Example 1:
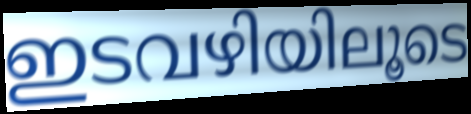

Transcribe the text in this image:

ഇടവഴിയിലൂടെ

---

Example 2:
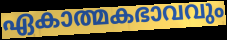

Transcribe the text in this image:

ഏകാത്മകഭാവവും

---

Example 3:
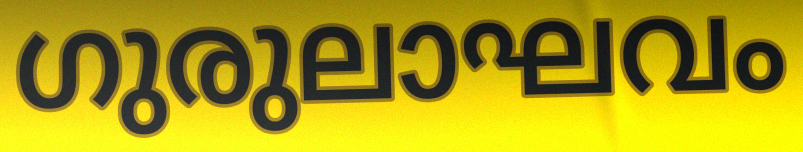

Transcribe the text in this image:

ഗുരുലാഘവം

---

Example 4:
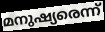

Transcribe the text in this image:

മനുഷ്യരെന്ന്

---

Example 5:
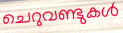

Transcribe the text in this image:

ചെറുവണ്ടുകൾ